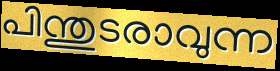
പിന്തുടരാവുന്ന